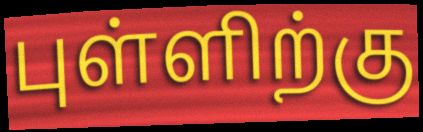
புள்ளிற்கு